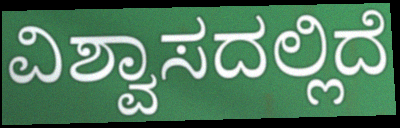
ವಿಶ್ವಾಸದಲ್ಲಿದೆ